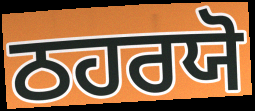
ਠਹਰਯੋ